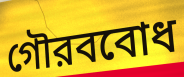
গৌরববোধ